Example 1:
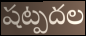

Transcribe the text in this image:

షట్పదల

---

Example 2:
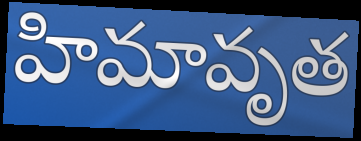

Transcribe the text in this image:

హిమావృత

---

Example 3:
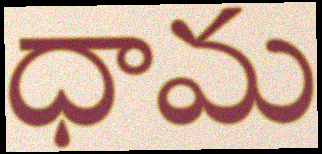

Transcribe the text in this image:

ధామ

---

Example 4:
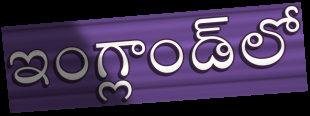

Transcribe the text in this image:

ఇంగ్లాండ్‌లో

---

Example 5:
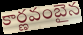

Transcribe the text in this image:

కార్ణవంబైన